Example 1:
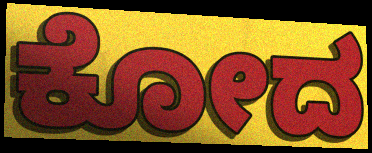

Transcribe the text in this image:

ಕೋದ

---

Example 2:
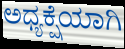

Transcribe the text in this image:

ಅಧ್ಯಕ್ಷೆಯಾಗಿ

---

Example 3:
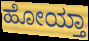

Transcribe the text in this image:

ಹೋಯ್ತಾ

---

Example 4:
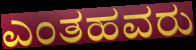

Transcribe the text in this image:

ಎಂತಹವರು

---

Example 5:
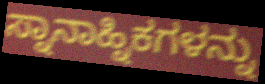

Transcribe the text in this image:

ಸ್ನಾನಾಹ್ನಿಕಗಳನ್ನು